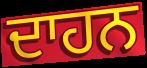
ਦਾਹਨ